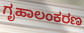
ಗೃಹಾಲಂಕರಣ